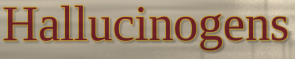
Hallucinogens